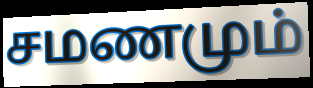
சமணமும்